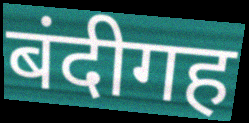
बंदीगह